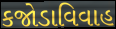
કજોડાવિવાહ